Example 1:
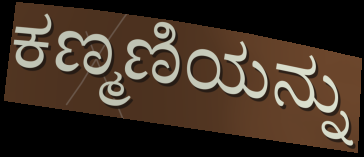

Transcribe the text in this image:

ಕಣ್ಮಣಿಯನ್ನು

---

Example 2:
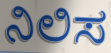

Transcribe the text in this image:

ನಿಲಿಸ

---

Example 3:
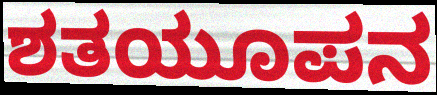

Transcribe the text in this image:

ಶತಯೂಪನ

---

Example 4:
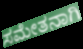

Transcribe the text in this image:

ಸಮೇತನಾಗಿ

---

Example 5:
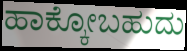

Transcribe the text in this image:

ಹಾಕ್ಕೋಬಹುದು